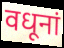
वधूनां